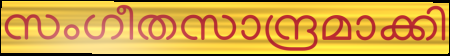
സംഗീതസാന്ദ്രമാക്കി